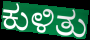
ಕುಳಿತು